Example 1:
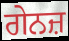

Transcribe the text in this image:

ਗੇਨਜ਼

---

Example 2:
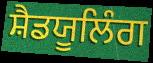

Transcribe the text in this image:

ਸ਼ੈਡਯੂਲਿੰਗ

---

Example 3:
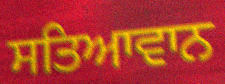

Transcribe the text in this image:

ਸਤਿਆਵਾਨ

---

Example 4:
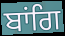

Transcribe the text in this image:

ਬਾਂਗਿ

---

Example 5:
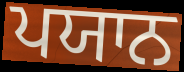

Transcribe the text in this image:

ਪਯਾਨ